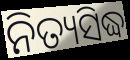
ନିତ୍ୟସିଦ୍ଧ